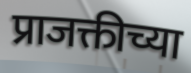
प्राजक्तीच्या